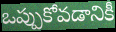
ఒప్పుకోవడానికీ